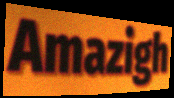
Amazigh